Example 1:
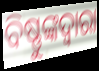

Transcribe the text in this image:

ବିଷ୍ଣୁଙ୍କଦ୍ୱାରା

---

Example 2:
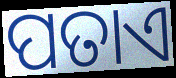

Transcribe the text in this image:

ପତାଏ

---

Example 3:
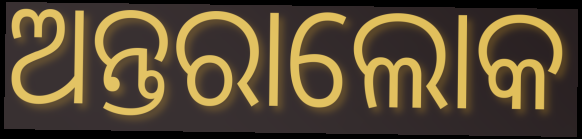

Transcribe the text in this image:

ଅନ୍ତରାଲୋକ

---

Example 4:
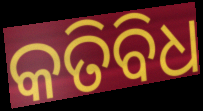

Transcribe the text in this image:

କତିବିଧ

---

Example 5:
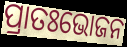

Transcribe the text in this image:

ପ୍ରାତଃଭୋଜନ